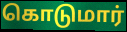
கொடுமார்